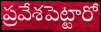
ప్రవేశపెట్టారో